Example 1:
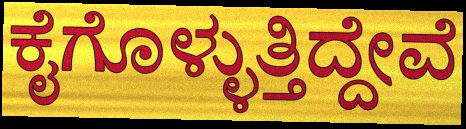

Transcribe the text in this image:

ಕೈಗೊಳ್ಳುತ್ತಿದ್ದೇವೆ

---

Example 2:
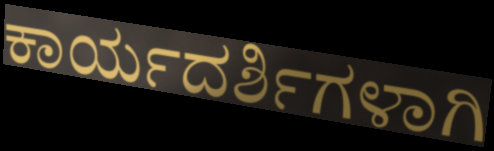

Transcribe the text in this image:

ಕಾರ್ಯದರ್ಶಿಗಳಾಗಿ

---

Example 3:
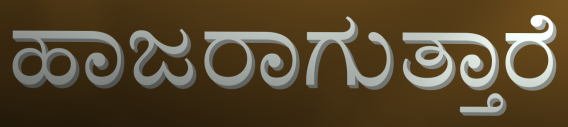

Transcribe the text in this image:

ಹಾಜರಾಗುತ್ತಾರೆ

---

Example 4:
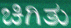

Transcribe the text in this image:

ಚಿಗಿತು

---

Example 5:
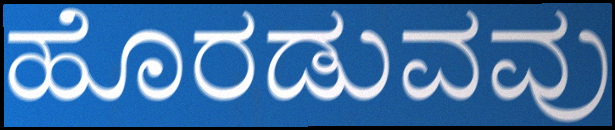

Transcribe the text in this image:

ಹೊರಡುವವು